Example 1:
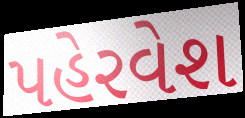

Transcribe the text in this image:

પહેરવેશ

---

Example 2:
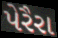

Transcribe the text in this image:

પેરૈરા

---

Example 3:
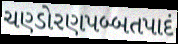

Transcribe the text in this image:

ચણ્ડોરણપબ્બતપાદં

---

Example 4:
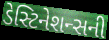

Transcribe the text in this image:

ડેસ્ટિનેશન્સની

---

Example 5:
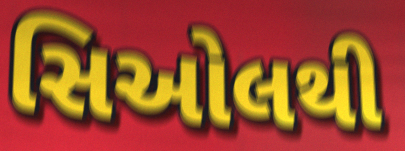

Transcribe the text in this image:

સિઓલથી